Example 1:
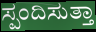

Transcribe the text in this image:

ಸ್ಪಂದಿಸುತ್ತಾ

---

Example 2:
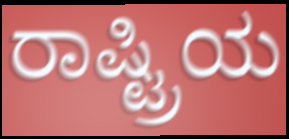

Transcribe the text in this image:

ರಾಷ್ಟ್ರಿಯ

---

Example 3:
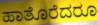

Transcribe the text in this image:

ಹಾತೊರೆದರೂ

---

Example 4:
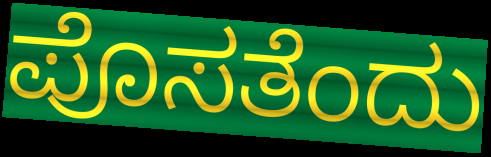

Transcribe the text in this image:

ಪೊಸತೆಂದು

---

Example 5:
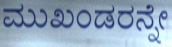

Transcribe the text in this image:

ಮುಖಂಡರನ್ನೇ